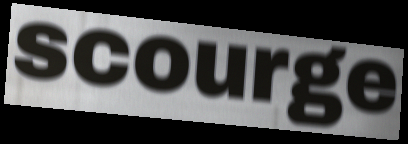
scourge